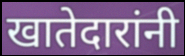
खातेदारांनी